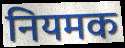
नियमक